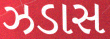
ઝડાસ